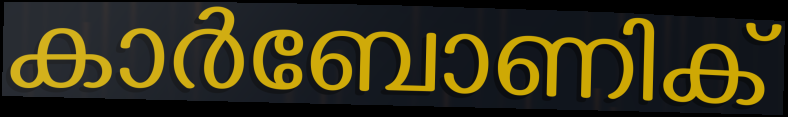
കാർബോണിക്